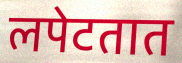
लपेटतात